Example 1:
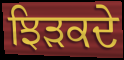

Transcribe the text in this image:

ਝਿੜਕਦੇ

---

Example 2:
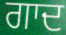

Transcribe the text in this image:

ਗਾਦ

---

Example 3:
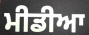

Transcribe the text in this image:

ਮੀਡੀਆ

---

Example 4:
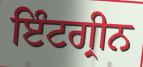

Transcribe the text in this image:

ਇੰਟਗ੍ਰੀਨ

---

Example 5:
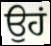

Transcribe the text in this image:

ਉਹਂ